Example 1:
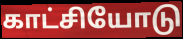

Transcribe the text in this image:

காட்சியோடு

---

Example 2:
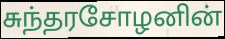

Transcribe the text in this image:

சுந்தரசோழனின்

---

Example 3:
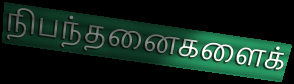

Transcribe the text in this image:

நிபந்தனைகளைக்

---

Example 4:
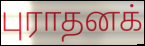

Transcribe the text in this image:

புராதனக்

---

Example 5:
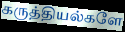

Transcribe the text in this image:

கருத்தியல்களே